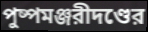
পুষ্পমঞ্জরীদণ্ডের